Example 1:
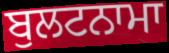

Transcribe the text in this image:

ਬੁਲਟਨਾਮਾ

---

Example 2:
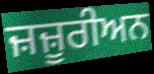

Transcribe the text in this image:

ਜ਼ਜ਼ੂਰੀਅਨ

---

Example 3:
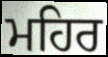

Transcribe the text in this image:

ਮਹਿਰ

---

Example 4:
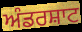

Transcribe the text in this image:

ਅੰਡਰਸ਼ਾਟ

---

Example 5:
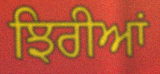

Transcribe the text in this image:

ਝਿਰੀਆਂ